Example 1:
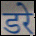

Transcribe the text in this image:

डरे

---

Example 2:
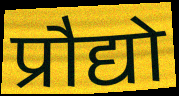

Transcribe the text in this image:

प्रौद्यो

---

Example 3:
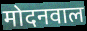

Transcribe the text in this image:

मोदनवाल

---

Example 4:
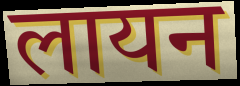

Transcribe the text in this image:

लायन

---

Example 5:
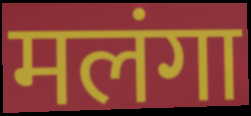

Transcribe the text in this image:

मलंगा